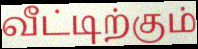
வீட்டிற்கும்